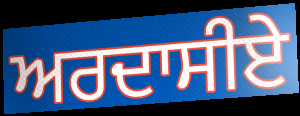
ਅਰਦਾਸੀਏ